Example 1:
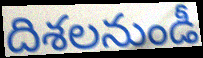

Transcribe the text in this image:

దిశలనుండీ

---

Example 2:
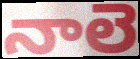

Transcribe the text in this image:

నాలె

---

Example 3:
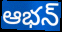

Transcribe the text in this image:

ఆభన్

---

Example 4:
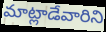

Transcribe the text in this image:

మాట్లాడేవారిని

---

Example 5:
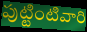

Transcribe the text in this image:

పుట్టింటివారి